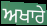
ਅਖਾਰੇ